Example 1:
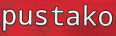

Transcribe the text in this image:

pustako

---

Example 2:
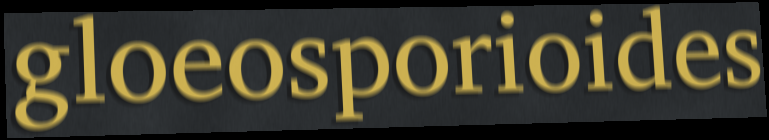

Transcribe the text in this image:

gloeosporioides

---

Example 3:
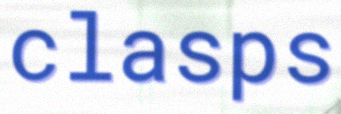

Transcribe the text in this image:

clasps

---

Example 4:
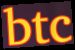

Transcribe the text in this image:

btc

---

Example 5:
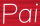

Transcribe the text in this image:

Pai